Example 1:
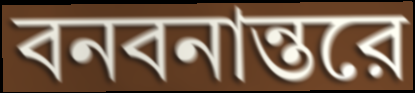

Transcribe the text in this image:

বনবনান্তরে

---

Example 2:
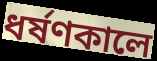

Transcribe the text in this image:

ধর্ষণকালে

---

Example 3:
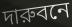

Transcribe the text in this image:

দারুবনে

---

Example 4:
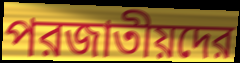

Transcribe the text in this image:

পরজাতীয়দের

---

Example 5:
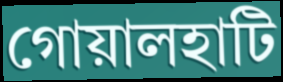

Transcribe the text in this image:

গোয়ালহাটি